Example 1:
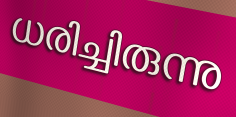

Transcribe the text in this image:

ധരിച്ചിരുന്നു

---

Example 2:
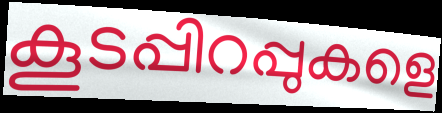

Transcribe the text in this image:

കൂടപ്പിറപ്പുകളെ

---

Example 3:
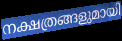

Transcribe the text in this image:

നക്ഷത്രങ്ങളുമായി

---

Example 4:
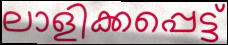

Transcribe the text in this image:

ലാളിക്കപ്പെട്ട്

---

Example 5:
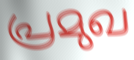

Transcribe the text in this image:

പ്രമുഖ